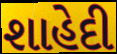
શાહેદી